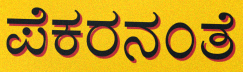
ಪೆಕರನಂತೆ